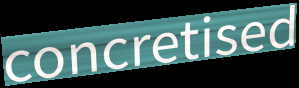
concretised